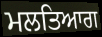
ਮਲਤਿਆਗ